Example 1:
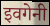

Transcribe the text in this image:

इवगेनी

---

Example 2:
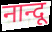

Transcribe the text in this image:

नान्दू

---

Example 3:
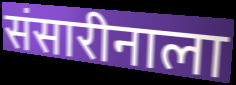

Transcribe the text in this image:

संसारीनाला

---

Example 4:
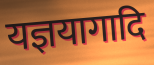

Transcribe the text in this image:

यज्ञयागादि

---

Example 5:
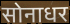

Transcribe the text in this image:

सोनाधर